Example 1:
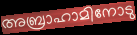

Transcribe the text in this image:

അബ്രാഹാമിനോടു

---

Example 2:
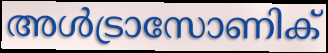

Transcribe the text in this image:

അൾട്രാസോണിക്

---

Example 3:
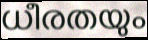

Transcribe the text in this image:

ധീരതയും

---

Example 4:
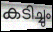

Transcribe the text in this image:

കടിച്ചും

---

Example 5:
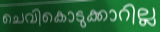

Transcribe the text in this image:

ചെവികൊടുക്കാറില്ല